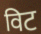
विट